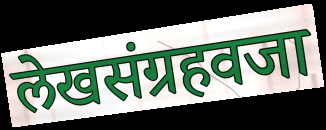
लेखसंग्रहवजा